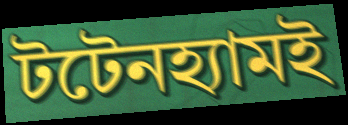
টটেনহ্যামই